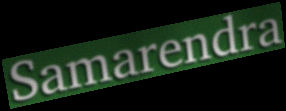
Samarendra